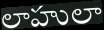
లాహులా